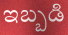
ఇబ్బడి